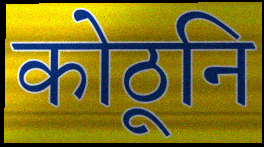
कोठूनि